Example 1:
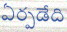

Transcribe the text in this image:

ఏర్పడేది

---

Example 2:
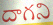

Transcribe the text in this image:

దాగని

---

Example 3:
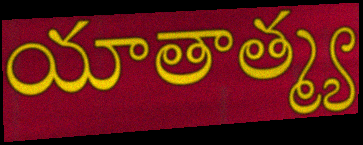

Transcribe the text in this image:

యాతాత్మ్య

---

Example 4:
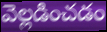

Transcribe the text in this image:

వెల్లడించడం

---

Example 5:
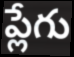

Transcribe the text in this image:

ప్లేగు